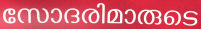
സോദരിമാരുടെ